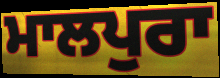
ਮਾਲਪੁਰਾ